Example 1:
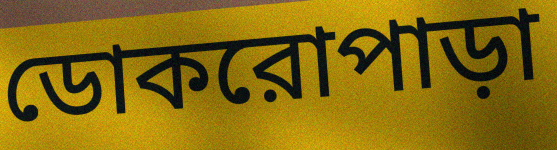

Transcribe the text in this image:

ডোকরোপাড়া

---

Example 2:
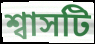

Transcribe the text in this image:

শ্বাসটি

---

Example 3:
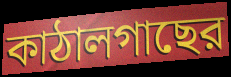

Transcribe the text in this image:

কাঠালগাছের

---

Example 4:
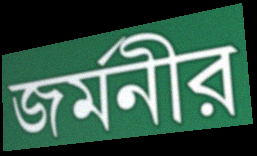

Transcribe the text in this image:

জর্মনীর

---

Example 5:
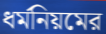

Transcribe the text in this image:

ধর্মনিয়মের